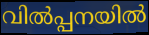
വിൽപ്പനയിൽ